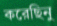
করেছিনু